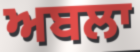
ਅਬਲਾ